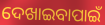
ଦେଖାଇବାପାଇଁ